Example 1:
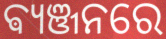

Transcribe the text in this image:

ଵ୍ୟଞ୍ଜନରେ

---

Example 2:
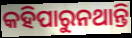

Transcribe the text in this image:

କହିପାରୁନଥାନ୍ତି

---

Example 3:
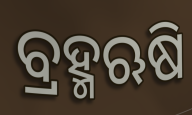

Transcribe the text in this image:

ବ୍ରହ୍ମଋଷି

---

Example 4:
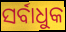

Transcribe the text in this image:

ସର୍ବାଧୁକ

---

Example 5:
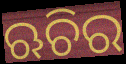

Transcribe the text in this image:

ଋଚିର